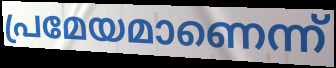
പ്രമേയമാണെന്ന്